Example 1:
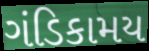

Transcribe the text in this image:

ગંડિકામય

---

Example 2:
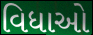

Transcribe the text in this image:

વિધાઓ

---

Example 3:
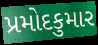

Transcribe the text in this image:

પ્રમોદકુમાર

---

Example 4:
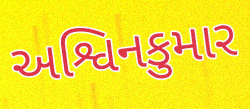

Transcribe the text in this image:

અશ્વિનકુમાર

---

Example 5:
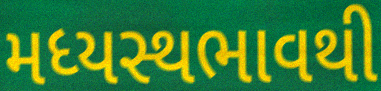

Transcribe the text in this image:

મધ્યસ્થભાવથી